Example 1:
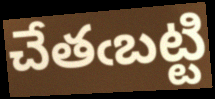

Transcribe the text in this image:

చేతఁబట్టి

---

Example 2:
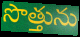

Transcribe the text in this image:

సొత్తును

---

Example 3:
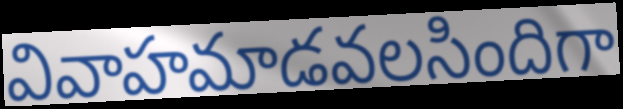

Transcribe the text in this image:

వివాహమాడవలసిందిగా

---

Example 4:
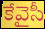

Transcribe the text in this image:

కేవైసీ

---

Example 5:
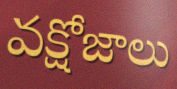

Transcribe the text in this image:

వక్షోజాలు